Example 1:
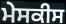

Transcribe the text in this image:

ਮੇਸਕੀਸ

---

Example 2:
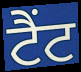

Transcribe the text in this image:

ਟੈਂਟ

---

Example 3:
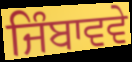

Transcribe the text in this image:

ਜਿੰਬਾਵਵੇ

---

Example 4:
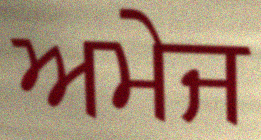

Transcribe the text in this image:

ਅਮੇਜ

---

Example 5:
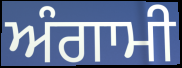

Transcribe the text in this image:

ਅੰਗਾਮੀ